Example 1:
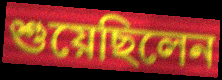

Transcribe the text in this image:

শুয়েছিলেন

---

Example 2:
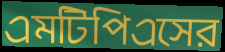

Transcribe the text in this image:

এমটিপিএসের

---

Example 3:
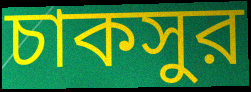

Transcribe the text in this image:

চাকসুর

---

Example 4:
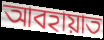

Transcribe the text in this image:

আবহায়াত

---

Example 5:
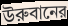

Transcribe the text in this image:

উরুবানের